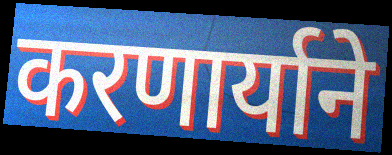
करणार्याने